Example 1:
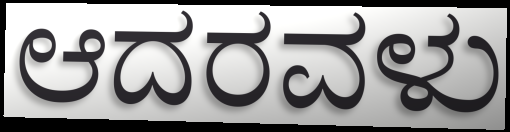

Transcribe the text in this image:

ಆದರವಳು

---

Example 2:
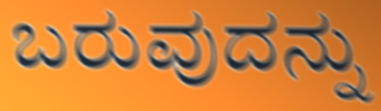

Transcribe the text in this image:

ಬರುವುದನ್ನು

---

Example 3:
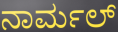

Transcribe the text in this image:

ನಾರ್ಮಲ್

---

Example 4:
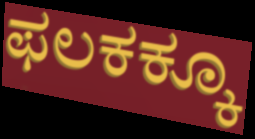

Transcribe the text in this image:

ಫಲಕಕ್ಕೂ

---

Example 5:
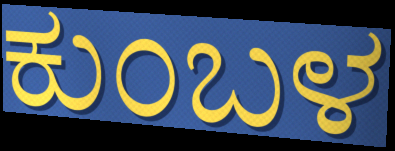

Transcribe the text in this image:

ಕುಂಬಳ